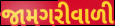
જામગરીવાળી